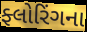
ફ્લોરિંગના